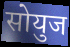
सोयुज